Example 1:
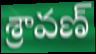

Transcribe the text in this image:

శ్రావణ్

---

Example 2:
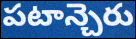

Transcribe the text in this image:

పటాన్చెరు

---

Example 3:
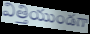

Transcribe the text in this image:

విత్తియుండగా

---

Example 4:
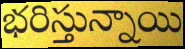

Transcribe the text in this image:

భరిస్తున్నాయి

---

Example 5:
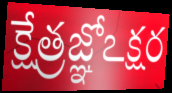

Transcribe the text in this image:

క్షేత్రజ్ఞోఽక్షర